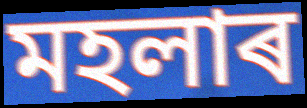
মহলাৰ